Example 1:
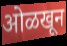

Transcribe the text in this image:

ओळखून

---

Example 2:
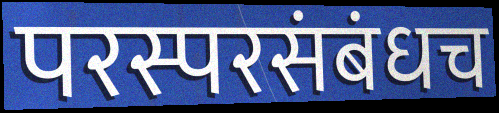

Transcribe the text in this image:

परस्परसंबंधच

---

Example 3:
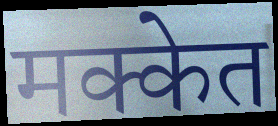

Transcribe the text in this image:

मक्केत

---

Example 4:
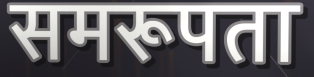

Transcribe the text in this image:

समरूपता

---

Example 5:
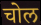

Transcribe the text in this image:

चोल